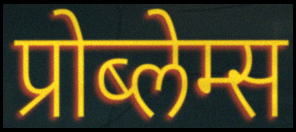
प्रोब्लेम्स